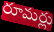
రూమర్లు